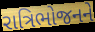
રાત્રિભોજનને